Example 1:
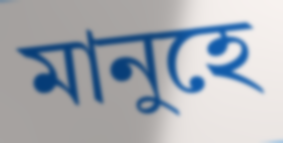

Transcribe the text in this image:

মানুহে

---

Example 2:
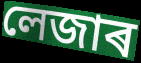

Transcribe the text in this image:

লেজাৰ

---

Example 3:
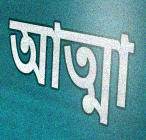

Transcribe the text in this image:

আত্মা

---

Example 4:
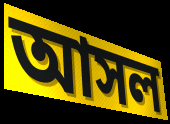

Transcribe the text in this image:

আসল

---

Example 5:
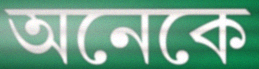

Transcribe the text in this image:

অনেকে